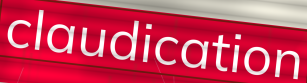
claudication